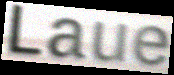
Laue